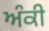
ਅੰਕੀ